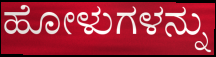
ಹೋಳುಗಳನ್ನು